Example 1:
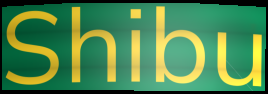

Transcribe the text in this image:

Shibu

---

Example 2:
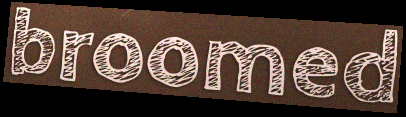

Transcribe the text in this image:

broomed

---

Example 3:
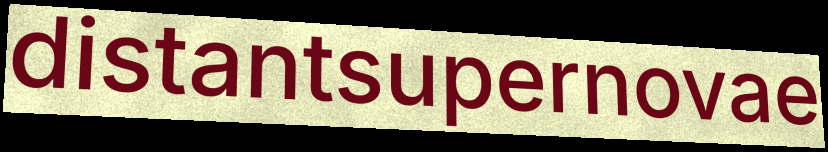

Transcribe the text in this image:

distantsupernovae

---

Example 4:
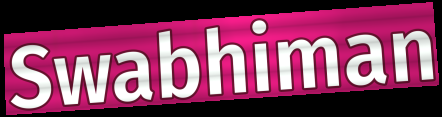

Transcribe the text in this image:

Swabhiman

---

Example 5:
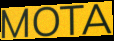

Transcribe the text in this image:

MOTA